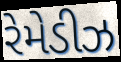
રેમેડીઝ